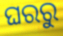
ଘରରୁ